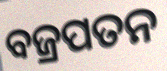
ବଜ୍ରପତନ